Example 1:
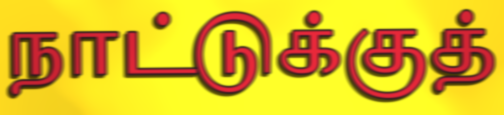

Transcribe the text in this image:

நாட்டுக்குத்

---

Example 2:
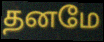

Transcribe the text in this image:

தனமே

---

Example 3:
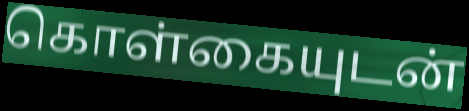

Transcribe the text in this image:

கொள்கையுடன்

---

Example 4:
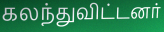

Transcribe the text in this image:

கலந்துவிட்டனர்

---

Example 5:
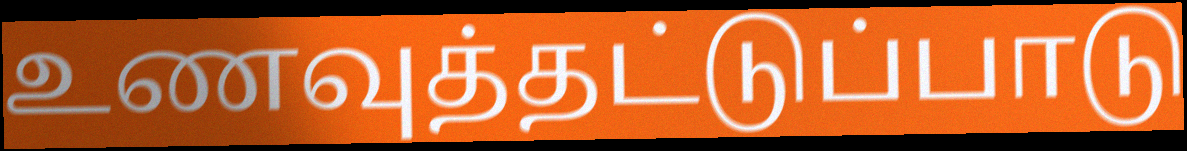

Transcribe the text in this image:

உணவுத்தட்டுப்பாடு